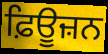
ਫ਼ਿਊਜ਼ਨ